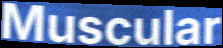
Muscular